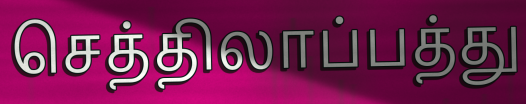
செத்திலாப்பத்து